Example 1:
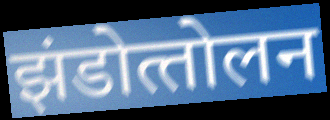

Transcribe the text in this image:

झंडोत्‍तोलन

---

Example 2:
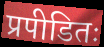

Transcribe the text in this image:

प्रपीडितः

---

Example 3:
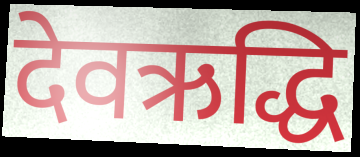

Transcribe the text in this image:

देवऋद्धि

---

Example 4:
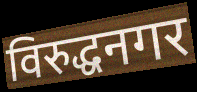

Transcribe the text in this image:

विरुद्धनगर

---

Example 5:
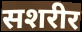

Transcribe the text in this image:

सशरीर